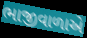
ભાજીવાળાએ